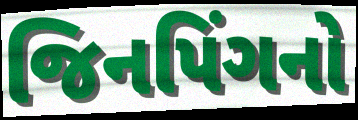
જિનપિંગનો